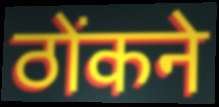
ठोंकने